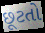
છૂટતો